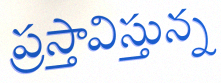
ప్రస్తావిస్తున్న